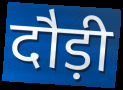
दौड़ी